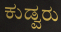
ಕುಡ್ವರು